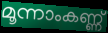
മൂന്നാംകണ്ണ്